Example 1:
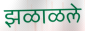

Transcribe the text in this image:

झळाळले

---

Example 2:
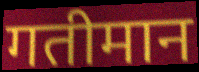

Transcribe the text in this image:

गतीमान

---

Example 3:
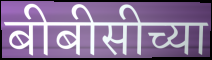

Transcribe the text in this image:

बीबीसीच्या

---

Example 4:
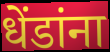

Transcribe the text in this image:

धेंडांना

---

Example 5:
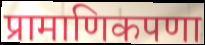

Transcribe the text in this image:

प्रामाणिकपणा